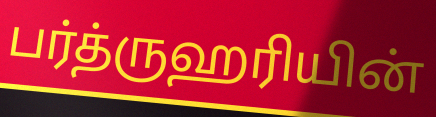
பர்த்ருஹரியின்